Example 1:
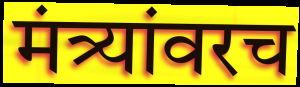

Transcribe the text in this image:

मंत्र्यांवरच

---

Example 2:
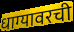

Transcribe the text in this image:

धाग्यावरची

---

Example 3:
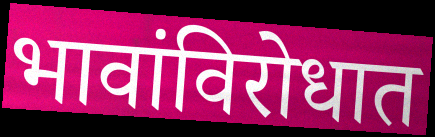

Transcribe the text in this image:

भावांविरोधात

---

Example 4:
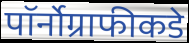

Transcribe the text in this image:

पॉर्नोग्राफीकडे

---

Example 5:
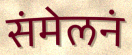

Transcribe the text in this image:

संमेलनं